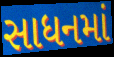
સાધનમાં